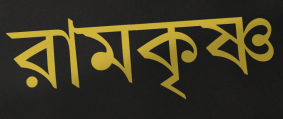
রামকৃষ্ণ